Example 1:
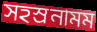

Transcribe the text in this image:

সহস্রনামম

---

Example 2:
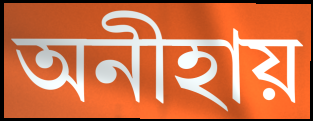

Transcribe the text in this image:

অনীহায়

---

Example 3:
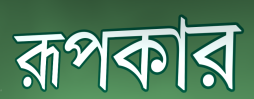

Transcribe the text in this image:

রূপকার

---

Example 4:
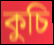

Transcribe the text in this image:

কুচি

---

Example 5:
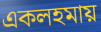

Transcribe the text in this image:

একলহমায়